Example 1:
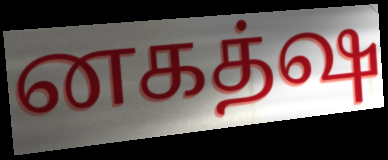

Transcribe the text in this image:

னகத்ஷ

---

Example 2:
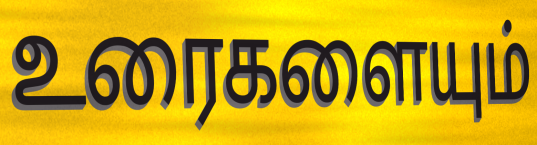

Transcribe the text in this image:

உரைகளையும்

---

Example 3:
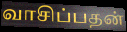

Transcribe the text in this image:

வாசிப்பதன்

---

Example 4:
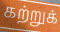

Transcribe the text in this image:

கற்றுக்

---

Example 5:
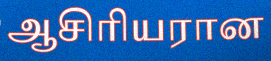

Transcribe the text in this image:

ஆசிரியரான